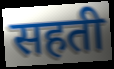
सहती